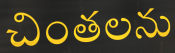
చింతలను